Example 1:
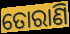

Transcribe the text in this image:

ତୋରାଣି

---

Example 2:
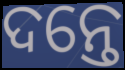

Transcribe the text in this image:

ଦନ୍ତେ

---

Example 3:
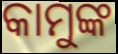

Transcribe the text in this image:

କାମୁଙ୍କ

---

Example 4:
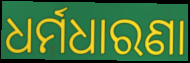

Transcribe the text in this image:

ଧର୍ମଧାରଣା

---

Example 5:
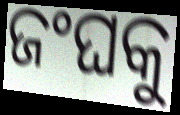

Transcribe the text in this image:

ଜଂଘକୁ